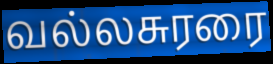
வல்லசுரரை